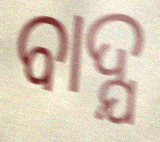
ବାଦ୍ଯ